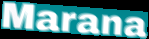
Marana